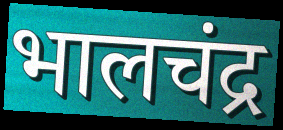
भालचंद्र